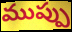
ముప్పు